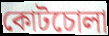
কোটচোলা